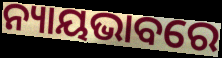
ନ୍ୟାୟଭାବରେ